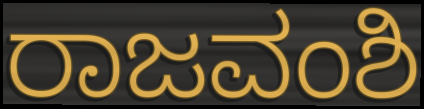
ರಾಜವಂಶಿ